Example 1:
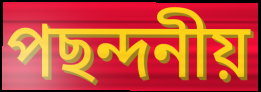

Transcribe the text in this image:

পছন্দনীয়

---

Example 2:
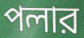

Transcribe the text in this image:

পলার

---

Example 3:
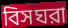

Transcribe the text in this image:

বিসঘরা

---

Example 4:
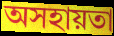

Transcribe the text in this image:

অসহায়তা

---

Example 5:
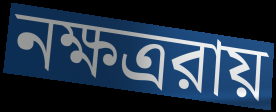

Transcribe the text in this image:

নক্ষত্ররায়